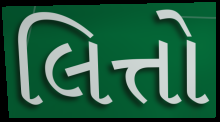
લિત્તો